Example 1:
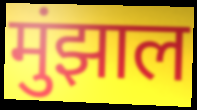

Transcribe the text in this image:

मुंझाल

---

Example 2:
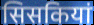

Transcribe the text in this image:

सिसकियां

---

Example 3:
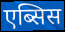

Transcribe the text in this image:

एब्सिस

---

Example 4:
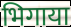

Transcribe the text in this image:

भिगाया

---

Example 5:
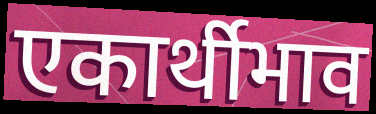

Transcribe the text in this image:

एकार्थीभाव